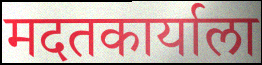
मदतकार्याला